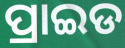
ପ୍ରାଇଡ